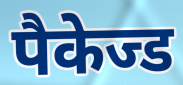
पैकेज्ड